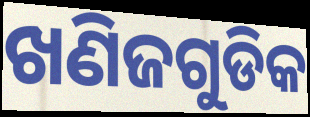
ଖଣିଜଗୁଡିକ